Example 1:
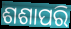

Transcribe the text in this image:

ଶଶାପରି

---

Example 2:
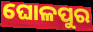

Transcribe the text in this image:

ଘୋଳପୁର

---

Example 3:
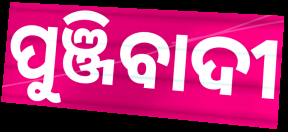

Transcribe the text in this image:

ପୁଞ୍ଜିବାଦୀ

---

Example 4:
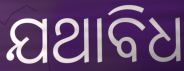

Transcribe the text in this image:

ଯଥାବିଧ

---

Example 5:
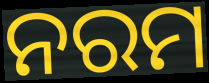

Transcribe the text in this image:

ନରମ